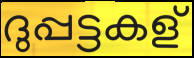
ദുപ്പട്ടകള്